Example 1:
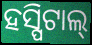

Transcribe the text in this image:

ହସ୍ପିଟାଲ୍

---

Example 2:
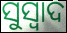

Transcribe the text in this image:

ସୁସ୍ୱାଦ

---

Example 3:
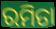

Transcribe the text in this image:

ରମିତା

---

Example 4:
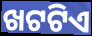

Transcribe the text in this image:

ଖଟଟିଏ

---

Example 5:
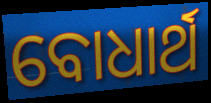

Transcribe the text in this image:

ବୋଧାର୍ଥ